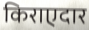
किराएदार